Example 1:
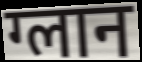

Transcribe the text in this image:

ग्लान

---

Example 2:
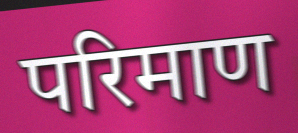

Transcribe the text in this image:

परिमाण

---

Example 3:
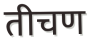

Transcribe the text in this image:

तीचण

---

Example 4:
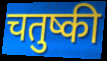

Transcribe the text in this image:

चतुष्की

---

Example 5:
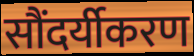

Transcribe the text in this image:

सौंदर्यीकरण